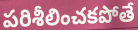
పరిశీలించకపోతే